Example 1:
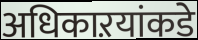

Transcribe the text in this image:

अधिकाऱयांकडे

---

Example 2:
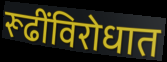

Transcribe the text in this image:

रूढींविरोधात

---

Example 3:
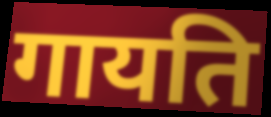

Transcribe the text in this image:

गायति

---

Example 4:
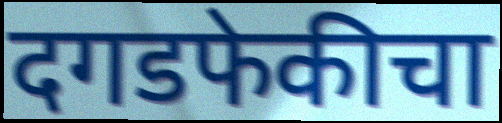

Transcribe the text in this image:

दगडफेकीचा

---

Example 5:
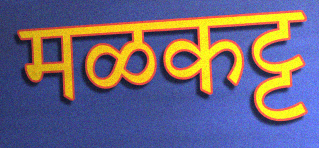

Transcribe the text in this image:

मळकट्ट